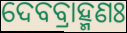
ଦେବବ୍ରାହ୍ମଣଃ